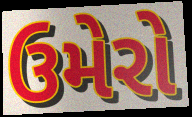
ઉમેરો